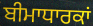
ਬੀਮਾਧਾਰਕਾਂ